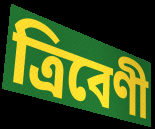
ত্ৰিবেণী